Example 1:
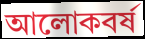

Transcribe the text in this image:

আলোকবর্ষ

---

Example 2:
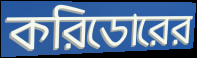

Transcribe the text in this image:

করিডোরের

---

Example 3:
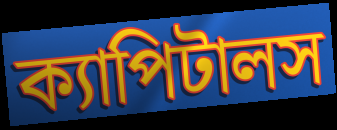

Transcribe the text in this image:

ক্যাপিটালস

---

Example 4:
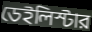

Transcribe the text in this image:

ডেইলিস্টার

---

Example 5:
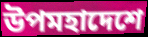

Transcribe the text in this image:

উপমহাদেশে